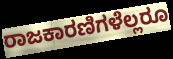
ರಾಜಕಾರಣಿಗಳೆಲ್ಲರೂ